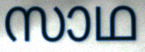
സാഥ